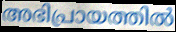
അഭിപ്രായത്തിൽ